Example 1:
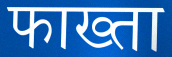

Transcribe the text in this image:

फाख्ता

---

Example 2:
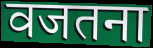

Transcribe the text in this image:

वजतना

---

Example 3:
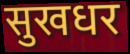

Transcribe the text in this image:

सुखधर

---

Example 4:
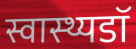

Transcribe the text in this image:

स्वास्थ्यडॉ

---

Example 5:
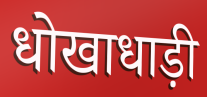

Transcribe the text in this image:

धोखाधाड़ी